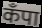
कँपा